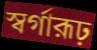
স্বর্গারূঢ়